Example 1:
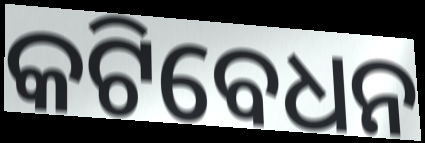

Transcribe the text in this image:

କଟିବେଧନ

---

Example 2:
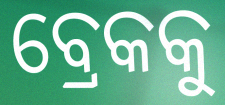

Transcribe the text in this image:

ବ୍ରେକକୁ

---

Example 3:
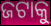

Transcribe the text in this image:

ଜଟାକୁ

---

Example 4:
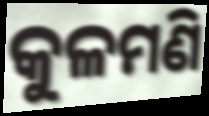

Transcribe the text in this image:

କୁଳମଣି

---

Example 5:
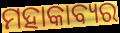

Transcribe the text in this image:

ମହାକାବ୍ୟର